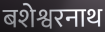
बशेश्वरनाथ